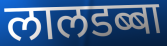
लालडब्बा